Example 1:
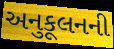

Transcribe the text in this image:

અનુકૂલનની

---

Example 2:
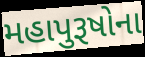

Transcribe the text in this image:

મહાપુરૂષોના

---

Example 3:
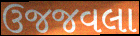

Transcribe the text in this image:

ઉજજવલા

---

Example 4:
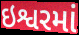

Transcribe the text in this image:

ઇશ્વરમાં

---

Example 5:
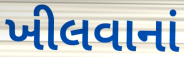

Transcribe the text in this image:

ખીલવાનાં